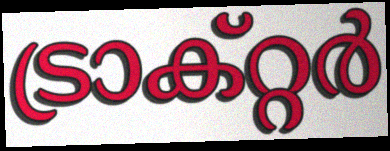
ട്രാക്റ്റർ